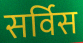
सर्विस